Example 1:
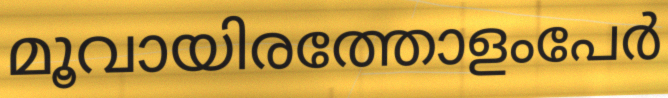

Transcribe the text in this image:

മൂവായിരത്തോളംപേർ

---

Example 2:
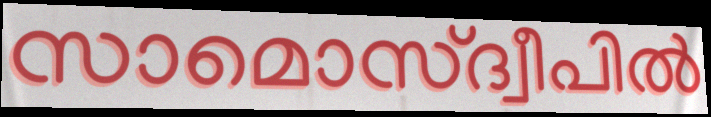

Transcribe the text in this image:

സാമൊസ്ദ്വീപിൽ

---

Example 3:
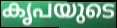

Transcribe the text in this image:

കൃപയുടെ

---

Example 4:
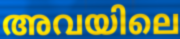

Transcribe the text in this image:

അവയിലെ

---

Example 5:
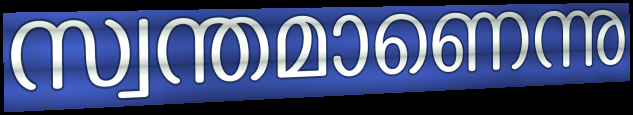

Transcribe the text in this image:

സ്വന്തമാണെന്നു